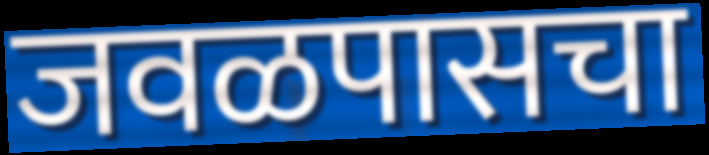
जवळपासचा